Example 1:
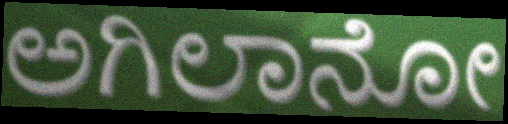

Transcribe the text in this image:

ಅಗಿಲಾನೋ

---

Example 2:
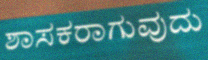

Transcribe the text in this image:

ಶಾಸಕರಾಗುವುದು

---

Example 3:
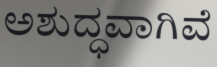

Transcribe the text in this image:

ಅಶುದ್ಧವಾಗಿವೆ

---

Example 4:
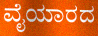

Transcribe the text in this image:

ವೈಯಾರದ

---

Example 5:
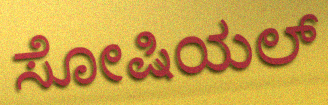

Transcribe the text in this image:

ಸೋಷಿಯಲ್